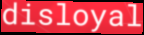
disloyal